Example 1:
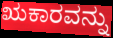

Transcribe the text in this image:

ಋಕಾರವನ್ನು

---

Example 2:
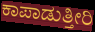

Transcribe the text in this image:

ಕಾಪಾಡುತ್ತೀರಿ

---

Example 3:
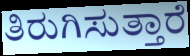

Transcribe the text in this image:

ತಿರುಗಿಸುತ್ತಾರೆ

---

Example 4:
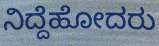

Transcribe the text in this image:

ನಿದ್ದೆಹೋದರು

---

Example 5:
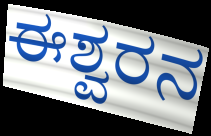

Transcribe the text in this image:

ಈಶ್ವರನ